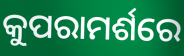
କୁପରାମର୍ଶରେ